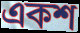
একশ